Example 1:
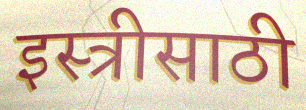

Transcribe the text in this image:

इस्त्रीसाठी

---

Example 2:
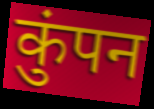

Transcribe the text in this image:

कुंपन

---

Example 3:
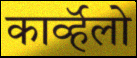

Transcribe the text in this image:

कार्व्हॅलो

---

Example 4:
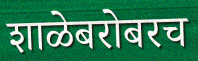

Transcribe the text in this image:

शाळेबरोबरच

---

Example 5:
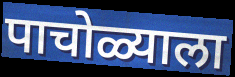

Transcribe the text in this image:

पाचोळ्याला